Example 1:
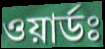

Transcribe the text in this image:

ওয়ার্ডঃ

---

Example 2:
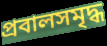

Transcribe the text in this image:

প্রবালসমৃদ্ধ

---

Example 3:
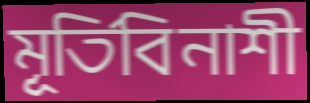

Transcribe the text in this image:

মূর্তিবিনাশী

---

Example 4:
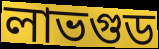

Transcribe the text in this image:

লাভগুড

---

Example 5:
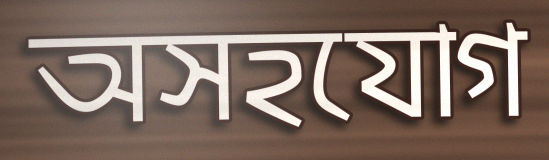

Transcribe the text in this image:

অসহযোগ